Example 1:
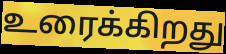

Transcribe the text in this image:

உரைக்கிறது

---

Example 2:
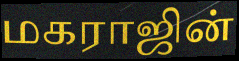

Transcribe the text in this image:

மகராஜின்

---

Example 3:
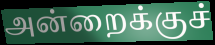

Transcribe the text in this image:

அன்றைக்குச்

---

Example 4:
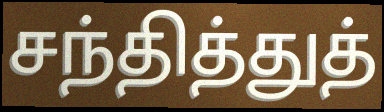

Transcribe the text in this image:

சந்தித்துத்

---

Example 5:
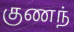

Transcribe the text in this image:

குணந்